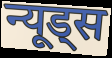
न्यूड्स